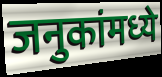
जनुकांमध्ये